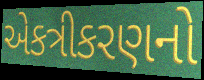
એકત્રીકરણનો